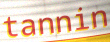
tannin